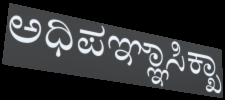
ಅಧಿಪಞ್ಞಾಸಿಕ್ಖಾ